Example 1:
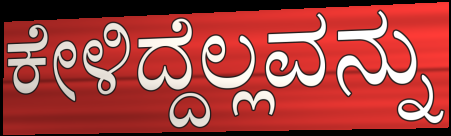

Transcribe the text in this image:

ಕೇಳಿದ್ದೆಲ್ಲವನ್ನು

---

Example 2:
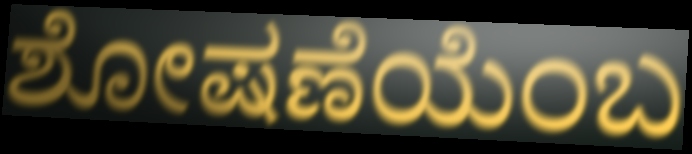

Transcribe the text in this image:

ಶೋಷಣೆಯೆಂಬ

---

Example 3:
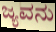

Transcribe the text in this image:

ಜ್ಯವನು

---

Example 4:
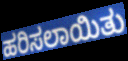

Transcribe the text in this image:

ಹರಿಸಲಾಯಿತು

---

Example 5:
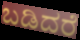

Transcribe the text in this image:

ಬಡಿದರೆ